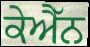
ਕੇਐੱਨ